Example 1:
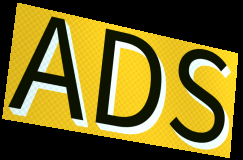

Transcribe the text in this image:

ADS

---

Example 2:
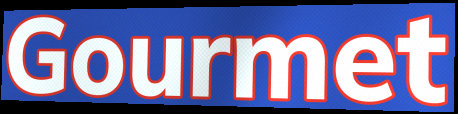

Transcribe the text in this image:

Gourmet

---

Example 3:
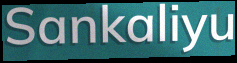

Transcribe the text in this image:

Sankaliyu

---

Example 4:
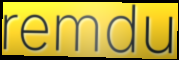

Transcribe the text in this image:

remdu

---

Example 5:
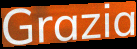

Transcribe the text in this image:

Grazia